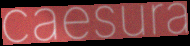
caesura